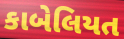
કાબેલિયત